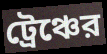
ট্রেঞ্চের